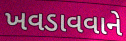
ખવડાવવાને